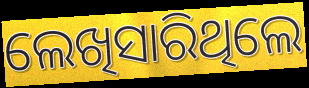
ଲେଖିସାରିଥିଲେ